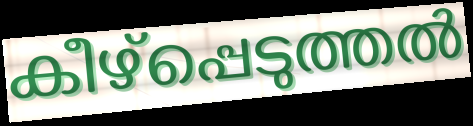
കീഴ്പ്പെടുത്തൽ